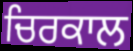
ਚਿਰਕਾਲ